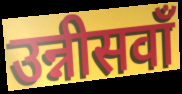
उन्नीसवाँ